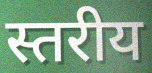
स्तरीय